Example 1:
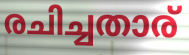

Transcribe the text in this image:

രചിച്ചതാര്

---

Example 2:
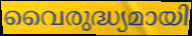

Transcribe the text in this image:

വൈരുദ്ധ്യമായി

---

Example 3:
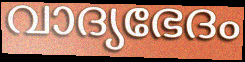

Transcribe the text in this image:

വാദ്യഭേദം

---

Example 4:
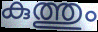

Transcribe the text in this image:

കുത്തും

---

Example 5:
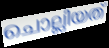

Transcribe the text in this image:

ചൊല്ലിയത്